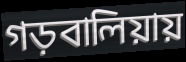
গড়বালিয়ায়